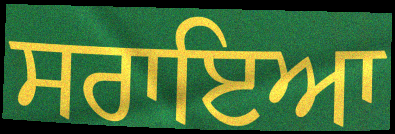
ਸਰਾਇਆ